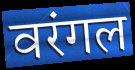
वरंगल